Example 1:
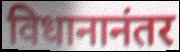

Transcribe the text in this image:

विधानानंतर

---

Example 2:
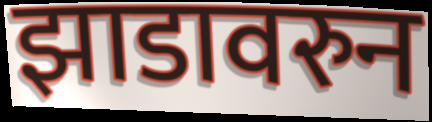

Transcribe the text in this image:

झाडावरुन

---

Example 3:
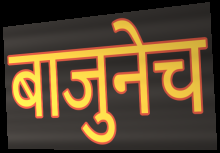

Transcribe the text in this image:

बाजुनेच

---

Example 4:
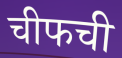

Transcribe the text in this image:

चीफची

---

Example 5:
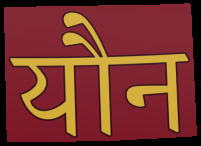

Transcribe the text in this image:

यौन